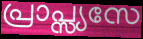
പ്രാപ്സ്യസേ